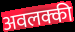
अवलक्की